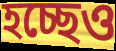
হচ্ছেও